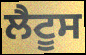
ਲੈਟੂਸ